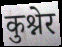
कुश्नेर